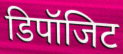
डिपॉजिट